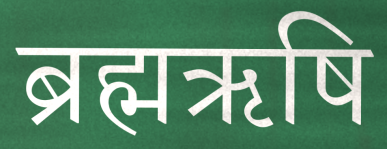
ब्रह्मऋषि